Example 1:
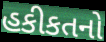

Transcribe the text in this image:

હકીકતનો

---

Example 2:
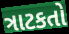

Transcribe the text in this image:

ત્રાટકતો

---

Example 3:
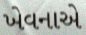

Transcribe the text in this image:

ખેવનાએ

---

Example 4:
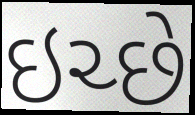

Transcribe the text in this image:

ઇચ્છે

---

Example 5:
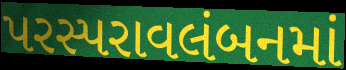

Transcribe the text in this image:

પરસ્પરાવલંબનમાં